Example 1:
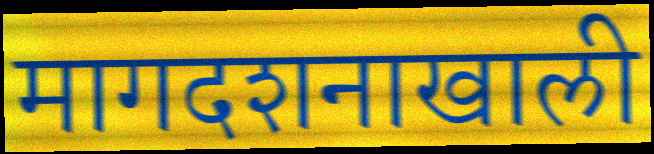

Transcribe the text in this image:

मागदशनाखाली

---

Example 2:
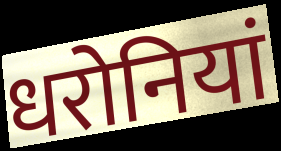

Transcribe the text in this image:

धरोनियां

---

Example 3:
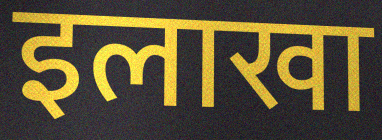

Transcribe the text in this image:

इलाखा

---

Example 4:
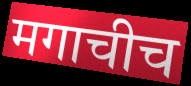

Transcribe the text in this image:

मगाचीच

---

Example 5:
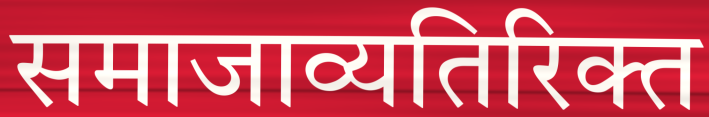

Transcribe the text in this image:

समाजाव्यतिरिक्त